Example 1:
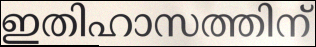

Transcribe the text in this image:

ഇതിഹാസത്തിന്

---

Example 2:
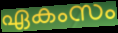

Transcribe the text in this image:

ഏകംസം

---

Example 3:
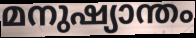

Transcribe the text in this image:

മനുഷ്യാന്തം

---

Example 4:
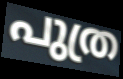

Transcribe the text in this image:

പുത്ര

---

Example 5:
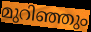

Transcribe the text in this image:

മുറിഞ്ഞും